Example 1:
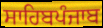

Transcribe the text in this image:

ਸਾਹਿਬਪੰਜਾਬ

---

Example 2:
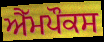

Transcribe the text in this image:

ਐੱਮਪੌਕਸ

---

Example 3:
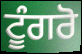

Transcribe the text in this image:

ਟੂੰਗਰੋ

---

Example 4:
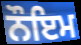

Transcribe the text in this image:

ਨੌਇਮ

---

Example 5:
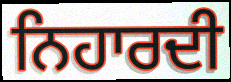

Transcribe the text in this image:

ਨਿਹਾਰਦੀ